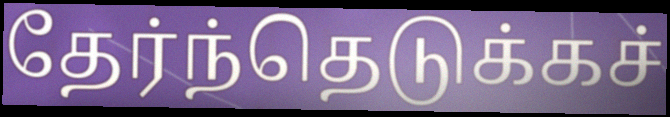
தேர்ந்தெடுக்கச்